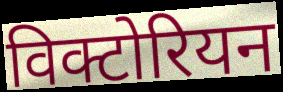
विक्टोरियन